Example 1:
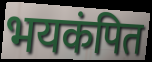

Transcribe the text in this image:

भयकंपित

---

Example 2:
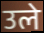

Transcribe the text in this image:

उले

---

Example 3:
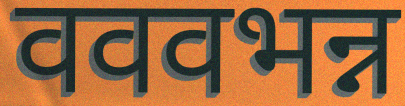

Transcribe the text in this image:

वववभन्न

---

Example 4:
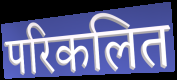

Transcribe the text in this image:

परिकलित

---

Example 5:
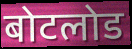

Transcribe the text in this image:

बोटलोड